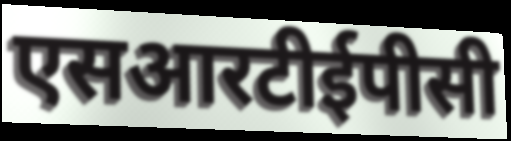
एसआरटीईपीसी